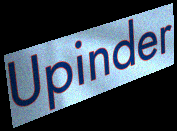
Upinder